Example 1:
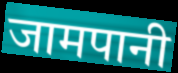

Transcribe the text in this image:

जामपानी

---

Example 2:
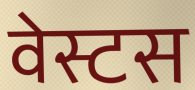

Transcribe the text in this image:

वेस्टस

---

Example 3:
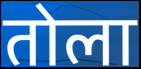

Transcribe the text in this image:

तोला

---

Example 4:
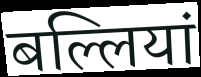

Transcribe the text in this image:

बल्लियां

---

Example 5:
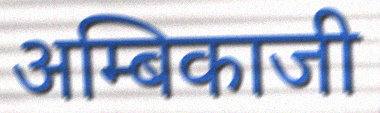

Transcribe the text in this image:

अम्बिकाजी